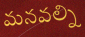
మనవల్ని